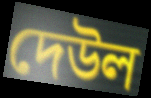
দেউল